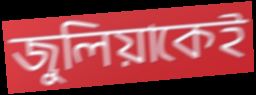
জুলিয়াকেই